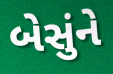
બેસુંને